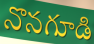
నొనగూడి